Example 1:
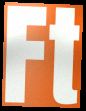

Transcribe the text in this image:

Ft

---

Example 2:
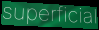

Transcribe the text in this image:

superficial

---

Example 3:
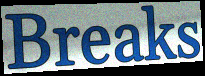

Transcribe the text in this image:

Breaks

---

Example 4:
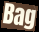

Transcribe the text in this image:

Bag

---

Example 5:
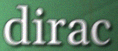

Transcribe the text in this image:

dirac